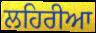
ਲਹਿਰੀਆ